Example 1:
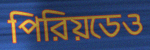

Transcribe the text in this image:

পিরিয়ডেও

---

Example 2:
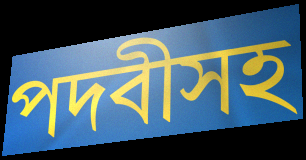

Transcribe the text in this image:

পদবীসহ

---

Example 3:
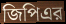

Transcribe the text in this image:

জিপিএর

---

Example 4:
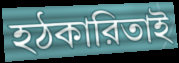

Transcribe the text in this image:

হঠকারিতাই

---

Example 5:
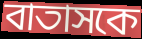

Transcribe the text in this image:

বাতাসকে